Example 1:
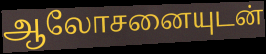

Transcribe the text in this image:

ஆலோசனையுடன்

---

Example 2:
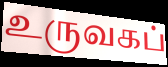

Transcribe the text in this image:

உருவகப்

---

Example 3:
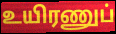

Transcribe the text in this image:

உயிரணுப்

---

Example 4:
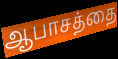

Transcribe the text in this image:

ஆபாசத்தை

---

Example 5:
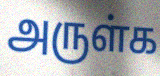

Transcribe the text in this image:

அருள்க